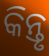
କିନ୍ତୃ